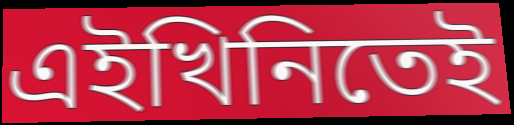
এইখিনিতেই